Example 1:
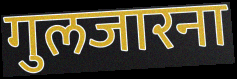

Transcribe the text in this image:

गुलजारना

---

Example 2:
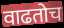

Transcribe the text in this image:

वाढतोच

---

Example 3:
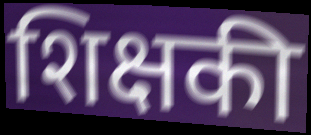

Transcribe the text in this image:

शिक्षकी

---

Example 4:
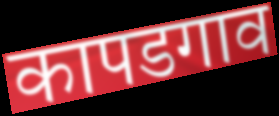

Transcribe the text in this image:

कापडगाव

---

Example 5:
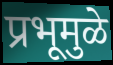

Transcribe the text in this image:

प्रभूमुळे